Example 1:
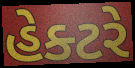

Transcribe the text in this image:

હેક્ટરે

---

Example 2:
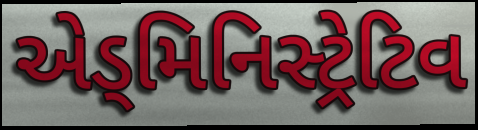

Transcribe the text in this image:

એડ્મિનિસ્ટ્રેટિવ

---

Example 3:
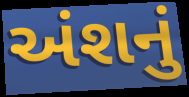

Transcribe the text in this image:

અંશનું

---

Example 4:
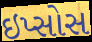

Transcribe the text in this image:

ઇપ્સોસ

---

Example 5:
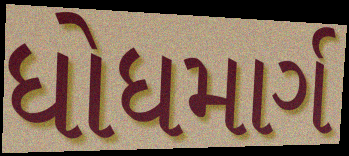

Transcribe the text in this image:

ધોધમાર્ગ